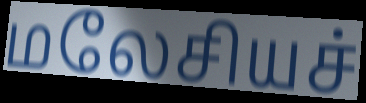
மலேசியச்